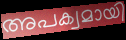
അപക്വമായി